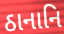
ઠાનાનિ